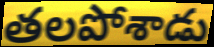
తలపోశాడు